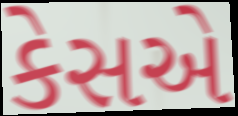
કેસએ